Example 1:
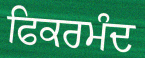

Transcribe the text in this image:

ਫਿਕਰਮੰਦ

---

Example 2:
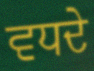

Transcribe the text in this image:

ਵਧਦੇ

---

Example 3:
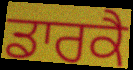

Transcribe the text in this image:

ਡਾਰਕੈ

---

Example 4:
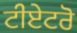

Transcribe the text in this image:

ਟੀਏਟਰੋ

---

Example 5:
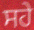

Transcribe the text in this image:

ਸਹੇ